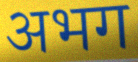
अभग